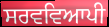
ਸਰਵਵਿਆਪੀ